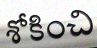
శోకించి